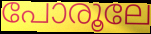
പോരൂലേ